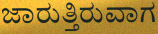
ಜಾರುತ್ತಿರುವಾಗ